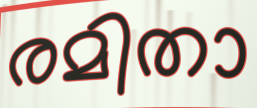
രമിതാ